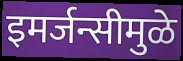
इमर्जन्सीमुळे